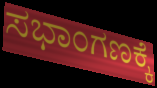
ಸಭಾಂಗಣಕ್ಕೆ